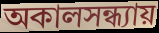
অকালসন্ধ্যায়